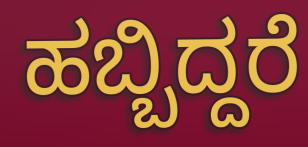
ಹಬ್ಬಿದ್ದರೆ